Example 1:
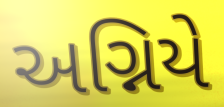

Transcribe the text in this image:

અગ્નિયે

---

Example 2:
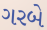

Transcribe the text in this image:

ગરબે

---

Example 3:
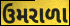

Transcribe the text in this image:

ઉમરાળા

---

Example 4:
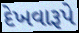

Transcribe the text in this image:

દેખવારૂપે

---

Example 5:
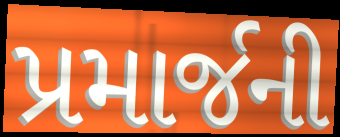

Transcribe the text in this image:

પ્રમાર્જની